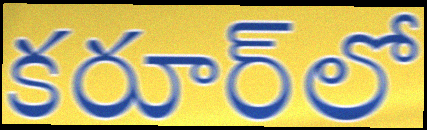
కరూర్‌లో